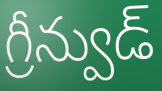
గ్రీన్వుడ్